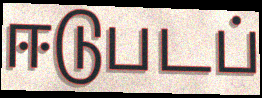
ஈடுபடப்